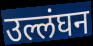
उल्लंघन